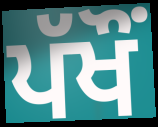
ਪੱਖੌਂ